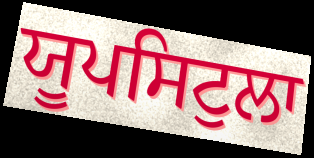
ਯੂਪਸਿਟੁਲਾ